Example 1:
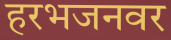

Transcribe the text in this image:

हरभजनवर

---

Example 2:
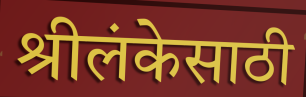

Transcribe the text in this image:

श्रीलंकेसाठी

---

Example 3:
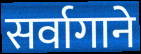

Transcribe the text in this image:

सर्वागाने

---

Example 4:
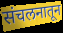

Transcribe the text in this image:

संचलनातून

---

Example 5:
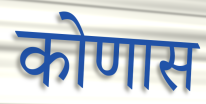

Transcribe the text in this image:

कोणास